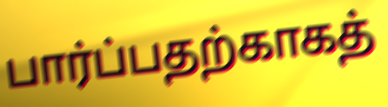
பார்ப்பதற்காகத்